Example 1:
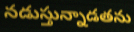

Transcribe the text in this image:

నడుస్తున్నాడతను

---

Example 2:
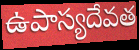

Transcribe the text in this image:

ఉపాస్యదేవత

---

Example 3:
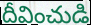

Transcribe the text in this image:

దీవించుడి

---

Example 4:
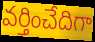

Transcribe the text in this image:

వర్తించేదిగా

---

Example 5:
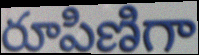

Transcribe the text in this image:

రూపిణిగా